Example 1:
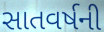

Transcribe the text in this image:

સાતવર્ષની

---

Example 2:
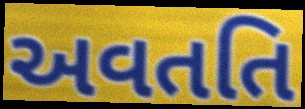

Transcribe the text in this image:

અવતતિ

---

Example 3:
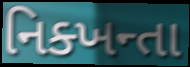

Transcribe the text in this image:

નિક્ખન્તા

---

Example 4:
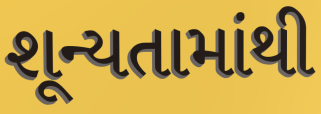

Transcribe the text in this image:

શૂન્યતામાંથી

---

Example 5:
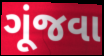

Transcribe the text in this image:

ગૂંજવા